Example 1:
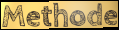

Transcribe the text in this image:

Methode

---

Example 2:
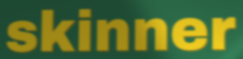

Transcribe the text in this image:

skinner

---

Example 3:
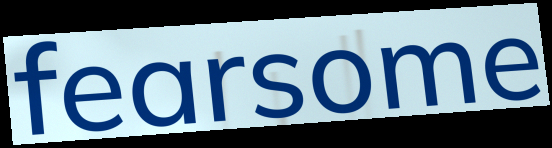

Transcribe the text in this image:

fearsome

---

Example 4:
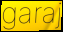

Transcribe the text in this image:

garaj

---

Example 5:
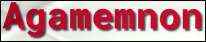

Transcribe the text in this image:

Agamemnon